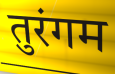
तुरंगम